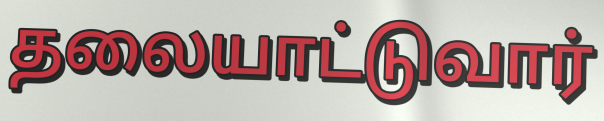
தலையாட்டுவார்